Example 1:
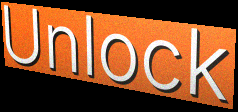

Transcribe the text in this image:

Unlock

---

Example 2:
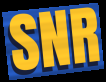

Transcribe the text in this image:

SNR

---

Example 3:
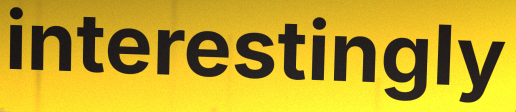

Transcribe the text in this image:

interestingly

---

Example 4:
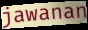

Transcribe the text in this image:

jawanan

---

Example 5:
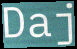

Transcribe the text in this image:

Daj